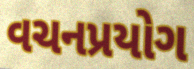
વચનપ્રયોગ